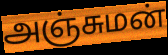
அஞ்சுமன்